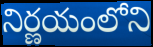
నిర్ణయంలోని